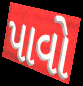
પાવો